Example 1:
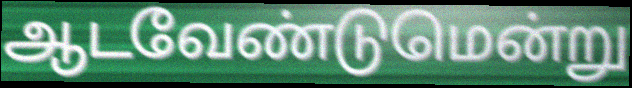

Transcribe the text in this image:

ஆடவேண்டுமென்று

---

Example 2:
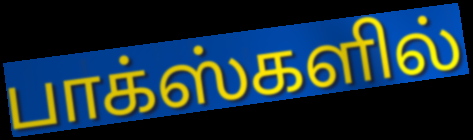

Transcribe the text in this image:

பாக்ஸ்களில்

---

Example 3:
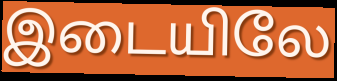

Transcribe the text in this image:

இடையிலே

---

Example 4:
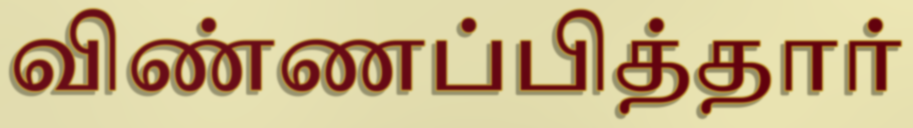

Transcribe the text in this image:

விண்ணப்பித்தார்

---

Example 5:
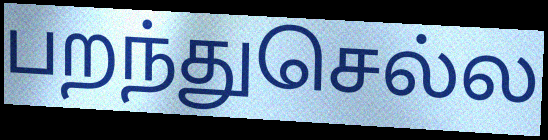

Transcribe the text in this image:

பறந்துசெல்ல